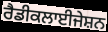
ਰੈਡੀਕਲਾਈਜੇਸ਼ਨ